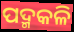
ପଦ୍ମକଳି